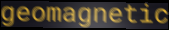
geomagnetic